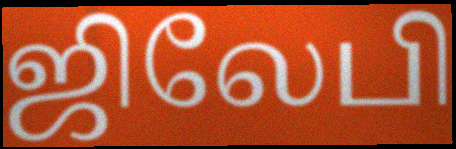
ஜிலேபி